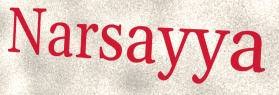
Narsayya